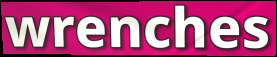
wrenches